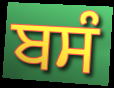
ਬਸੰ